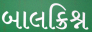
બાલક્રિશ્ન